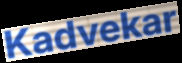
Kadvekar